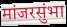
मांजरसुंभा